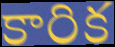
కారిక